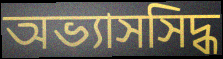
অভ্যাসসিদ্ধ